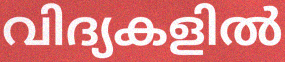
വിദ്യകളിൽ